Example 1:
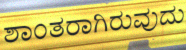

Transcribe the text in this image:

ಶಾಂತರಾಗಿರುವುದು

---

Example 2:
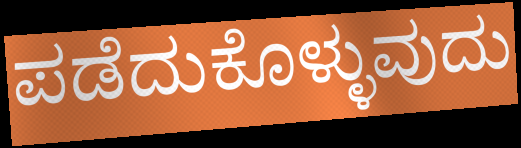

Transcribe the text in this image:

ಪಡೆದುಕೊಳ್ಳುವುದು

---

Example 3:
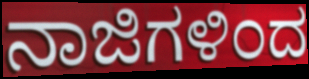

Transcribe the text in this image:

ನಾಜಿಗಳಿಂದ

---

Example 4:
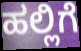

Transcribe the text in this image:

ಹಲ್ಲಿಗೆ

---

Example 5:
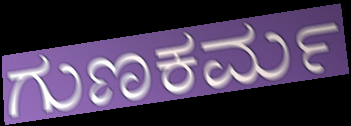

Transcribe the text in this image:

ಗುಣಕರ್ಮ